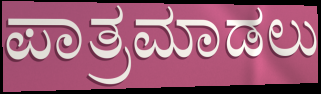
ಪಾತ್ರಮಾಡಲು